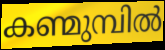
കണ്മുമ്പിൽ